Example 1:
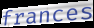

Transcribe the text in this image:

frances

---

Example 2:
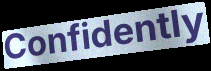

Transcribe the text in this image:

Confidently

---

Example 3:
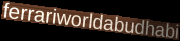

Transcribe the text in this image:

ferrariworldabudhabi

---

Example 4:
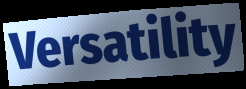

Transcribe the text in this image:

Versatility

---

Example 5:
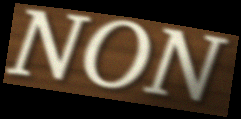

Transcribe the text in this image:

NON